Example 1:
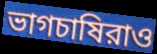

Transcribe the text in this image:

ভাগচাষিরাও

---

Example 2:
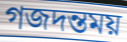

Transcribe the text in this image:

গজদন্তময়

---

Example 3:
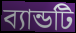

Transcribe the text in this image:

ব্যান্ডটি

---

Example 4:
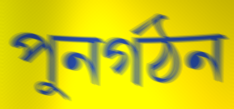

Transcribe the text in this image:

পুনর্গঠন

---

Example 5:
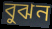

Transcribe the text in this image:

বুঝন